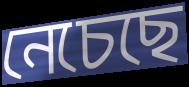
নেচেছে